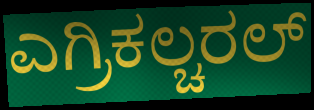
ಎಗ್ರಿಕಲ್ಚರಲ್